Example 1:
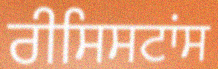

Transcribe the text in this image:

ਰੀਸਿਸਟਾਂਸ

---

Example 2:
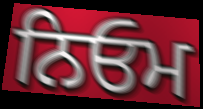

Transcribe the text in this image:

ਨਿਓਮ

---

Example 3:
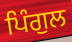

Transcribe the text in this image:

ਪਿੰਗੁਲ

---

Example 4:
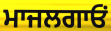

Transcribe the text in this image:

ਮਾਜਲਗਾਓਂ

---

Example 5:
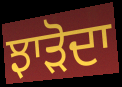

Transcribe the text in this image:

ਝਾੜੋਦਾ